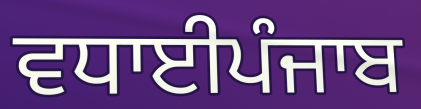
ਵਧਾਈਪੰਜਾਬ